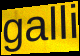
galli